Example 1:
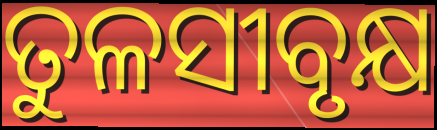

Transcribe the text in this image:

ତୁଳସୀବୃକ୍ଷ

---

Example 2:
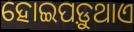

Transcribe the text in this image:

ହୋଇପଡ଼ୁଥାଏ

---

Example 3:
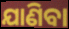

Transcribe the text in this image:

ଯାଣିବା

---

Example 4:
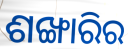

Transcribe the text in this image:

ଶଙ୍ଖାରିର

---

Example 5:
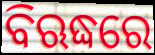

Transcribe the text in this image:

ବିଋଦ୍ଧରେ